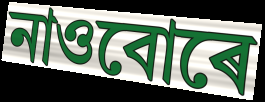
নাওবোৰে